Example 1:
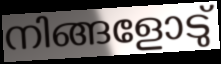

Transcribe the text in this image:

നിങ്ങളോടു്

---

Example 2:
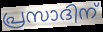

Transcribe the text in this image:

പ്രസാദിന്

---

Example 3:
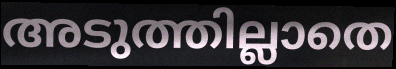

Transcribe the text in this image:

അടുത്തില്ലാതെ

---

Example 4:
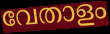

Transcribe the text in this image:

വേതാളം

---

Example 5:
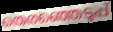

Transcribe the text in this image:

തെരഞ്ഞെടുപ്പ്